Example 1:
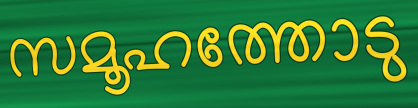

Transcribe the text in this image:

സമൂഹത്തോടു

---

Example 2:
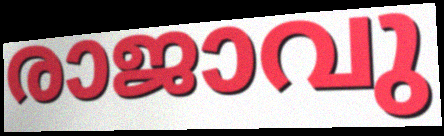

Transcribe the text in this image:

രാജാവു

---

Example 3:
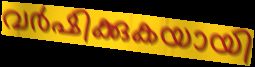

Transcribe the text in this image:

വർഷിക്കുകയായി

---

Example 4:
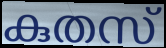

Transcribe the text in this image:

കുതസ്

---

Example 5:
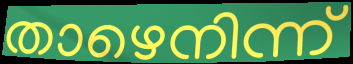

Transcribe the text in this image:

താഴെനിന്ന്